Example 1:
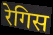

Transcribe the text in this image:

रेगिस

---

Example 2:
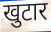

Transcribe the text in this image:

खुटार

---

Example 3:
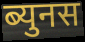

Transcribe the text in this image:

ब्युनस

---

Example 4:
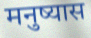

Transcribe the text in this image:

मनुष्यास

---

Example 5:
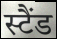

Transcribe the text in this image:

स्‍टैंड